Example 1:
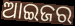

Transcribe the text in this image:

ଆଇଜର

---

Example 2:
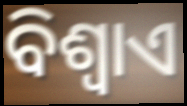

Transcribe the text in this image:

ବିଶ୍ୱାଏ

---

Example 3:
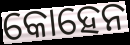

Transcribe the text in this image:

କୋହେନ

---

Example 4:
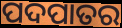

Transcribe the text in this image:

ପଦପାତର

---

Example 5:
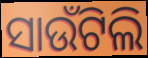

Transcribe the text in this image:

ସାଉଁଟିଲି